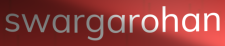
swargarohan